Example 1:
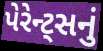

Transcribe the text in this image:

પેરેન્ટ્સનું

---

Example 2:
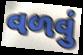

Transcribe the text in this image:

વળવું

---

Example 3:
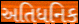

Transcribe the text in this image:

અતિધનિક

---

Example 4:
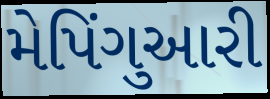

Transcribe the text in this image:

મેપિંગુઆરી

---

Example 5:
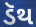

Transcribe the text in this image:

ડૅથ